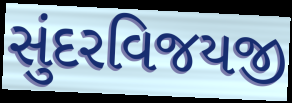
સુંદરવિજયજી